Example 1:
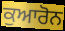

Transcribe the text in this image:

ਕੁਆਰੋਨ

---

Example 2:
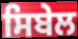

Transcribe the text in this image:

ਸਿਬੇਲ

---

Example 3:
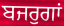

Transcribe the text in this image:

ਬਜਰੁਗਾਂ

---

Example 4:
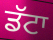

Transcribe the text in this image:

ਡੱਟਾ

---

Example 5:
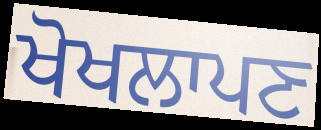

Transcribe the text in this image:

ਖੋਖਲਾਪਣ